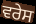
ਵਰੇਸ